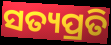
ସତ୍ୟପ୍ରତି